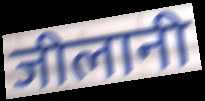
जीलानी